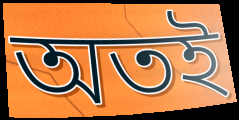
অতই